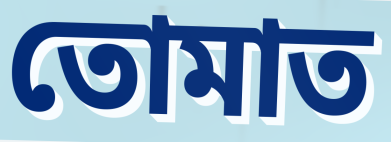
তোমাত